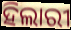
ହିଲାରୀ